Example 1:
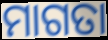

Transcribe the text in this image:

ମାଗତା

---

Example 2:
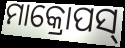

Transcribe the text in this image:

ମାକ୍ରୋପସ୍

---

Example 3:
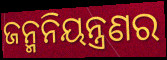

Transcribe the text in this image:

ଜନ୍ମନିୟନ୍ତ୍ରଣର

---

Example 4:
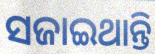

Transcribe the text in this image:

ସଜାଇଥାନ୍ତି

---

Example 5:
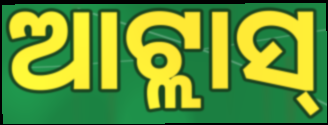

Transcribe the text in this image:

ଆଟ୍ଲାସ୍